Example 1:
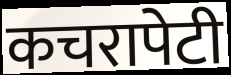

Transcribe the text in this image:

कचरापेटी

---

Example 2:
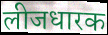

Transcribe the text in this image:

लीजधारक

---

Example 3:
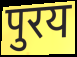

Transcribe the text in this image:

पुरय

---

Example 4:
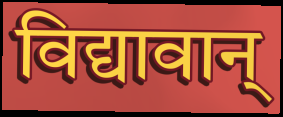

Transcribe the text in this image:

विद्यावान्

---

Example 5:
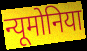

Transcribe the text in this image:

न्यूमोनिया